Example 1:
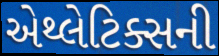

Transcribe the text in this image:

એથ્લેટિક્સની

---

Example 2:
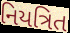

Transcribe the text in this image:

નિયત્રિત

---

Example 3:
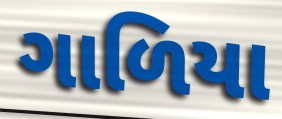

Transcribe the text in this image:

ગાળિયા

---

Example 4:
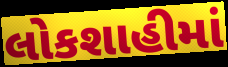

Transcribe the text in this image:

લોકશાહીમાં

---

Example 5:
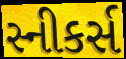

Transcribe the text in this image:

સ્નીકર્સ